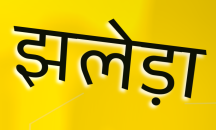
झलेड़ा